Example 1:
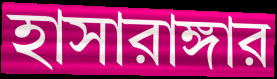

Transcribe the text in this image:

হাসারাঙ্গার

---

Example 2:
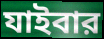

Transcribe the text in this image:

যাইবার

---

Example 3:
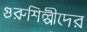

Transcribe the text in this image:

গুরুশিল্পীদের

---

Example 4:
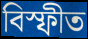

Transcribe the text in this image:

বিস্ফীত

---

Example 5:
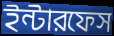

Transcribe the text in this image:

ইন্টারফেস